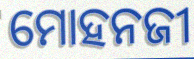
ମୋହନଜୀ